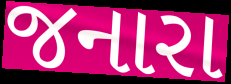
જનારા